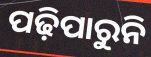
ପଢ଼ିପାରୁନି